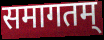
समागतम्